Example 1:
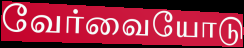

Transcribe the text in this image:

வேர்வையோடு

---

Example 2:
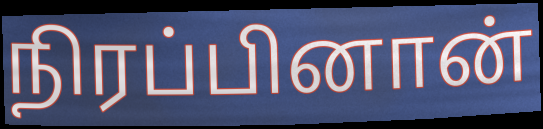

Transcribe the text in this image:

நிரப்பினான்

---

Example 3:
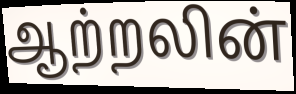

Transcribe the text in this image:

ஆற்றலின்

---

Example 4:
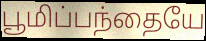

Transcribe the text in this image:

பூமிப்பந்தையே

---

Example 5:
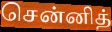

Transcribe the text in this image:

சென்னித்